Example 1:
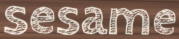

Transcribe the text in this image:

sesame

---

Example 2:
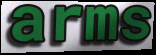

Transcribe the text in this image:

arms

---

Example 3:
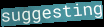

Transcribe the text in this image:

suggesting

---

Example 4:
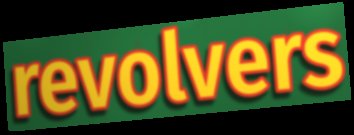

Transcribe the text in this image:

revolvers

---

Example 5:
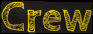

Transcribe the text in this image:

Crew